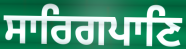
ਸਾਰਿਗਪਾਣਿ